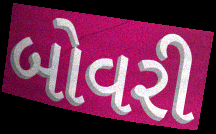
બોવરી